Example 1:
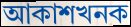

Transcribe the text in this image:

আকাশখনক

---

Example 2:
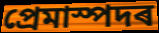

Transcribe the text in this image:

প্ৰেমাস্পদৰ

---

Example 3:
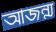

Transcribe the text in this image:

আজন্ম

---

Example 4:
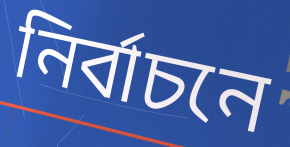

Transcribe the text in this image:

নিৰ্বাচনে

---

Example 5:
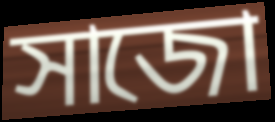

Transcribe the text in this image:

সাজো